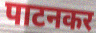
पाटनकर